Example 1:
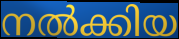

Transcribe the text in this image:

നൽക്കിയ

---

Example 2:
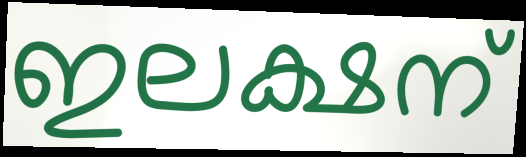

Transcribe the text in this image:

ഇലക്ഷന്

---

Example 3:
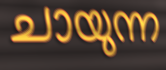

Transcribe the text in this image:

ചായുന്ന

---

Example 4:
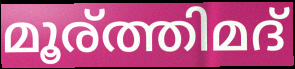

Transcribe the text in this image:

മൂര്ത്തിമദ്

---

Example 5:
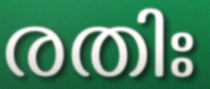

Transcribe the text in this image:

രതിഃ